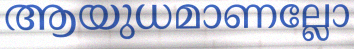
ആയുധമാണല്ലോ